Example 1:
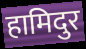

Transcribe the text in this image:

हामिदुर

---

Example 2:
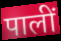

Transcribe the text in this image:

पालीं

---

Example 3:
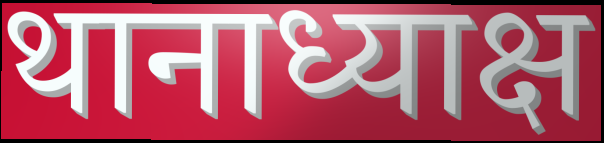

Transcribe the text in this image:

थानाध्याक्ष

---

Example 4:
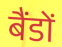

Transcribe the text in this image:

बैंडों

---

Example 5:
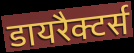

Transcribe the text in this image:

डायरैक्टर्स